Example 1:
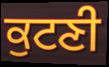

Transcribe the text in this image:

ਕੁਟਣੀ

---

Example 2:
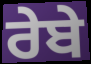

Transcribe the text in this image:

ਰੇਬੇ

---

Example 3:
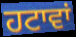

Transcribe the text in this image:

ਹਟਾਵਾਂ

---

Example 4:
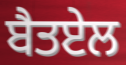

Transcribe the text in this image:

ਬੈਤਏਲ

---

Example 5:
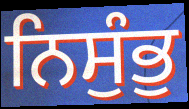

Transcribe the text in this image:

ਨਿਸੁੰਭੁ